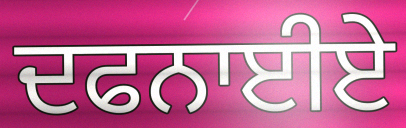
ਦਫਨਾਈਏ